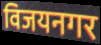
विजयनगर